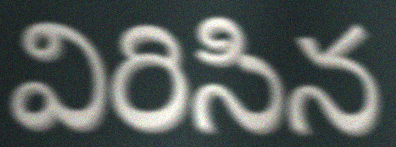
విరిసిన